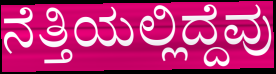
ನೆತ್ತಿಯಲ್ಲಿದ್ದೆವು